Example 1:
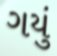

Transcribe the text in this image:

ગયું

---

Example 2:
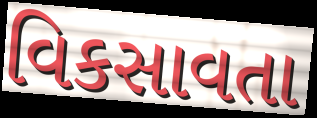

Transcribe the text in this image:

વિકસાવતા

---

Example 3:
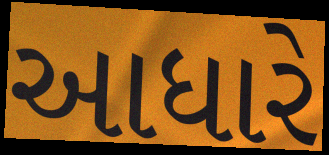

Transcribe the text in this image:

આધારે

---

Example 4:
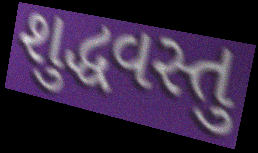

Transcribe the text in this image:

શુદ્ધવસ્તુ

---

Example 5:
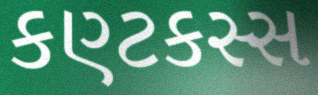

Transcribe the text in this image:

કણ્ટકસ્સ